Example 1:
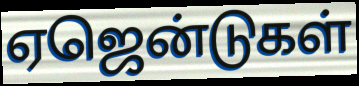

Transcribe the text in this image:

ஏஜென்டுகள்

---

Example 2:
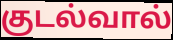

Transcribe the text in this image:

குடல்வால்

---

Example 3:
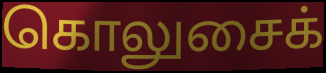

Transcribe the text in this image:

கொலுசைக்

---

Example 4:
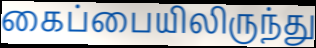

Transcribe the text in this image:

கைப்பையிலிருந்து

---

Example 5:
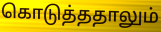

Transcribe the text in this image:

கொடுத்ததாலும்